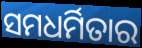
ସମଧର୍ମିତାର